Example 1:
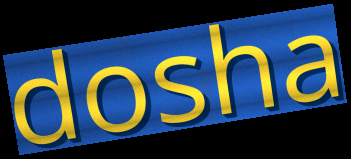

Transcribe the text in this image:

dosha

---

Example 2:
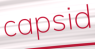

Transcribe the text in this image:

capsid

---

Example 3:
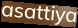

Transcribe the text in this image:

asattiya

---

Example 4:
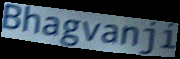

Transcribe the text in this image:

Bhagvanji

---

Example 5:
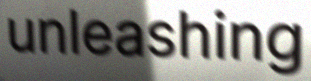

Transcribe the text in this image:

unleashing